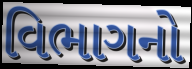
વિભાગનો